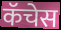
कॅचेस